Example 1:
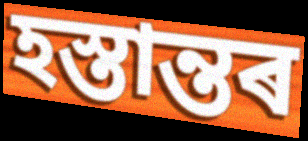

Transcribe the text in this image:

হস্তান্তৰ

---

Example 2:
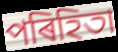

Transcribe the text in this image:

পৰিহিতা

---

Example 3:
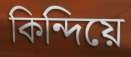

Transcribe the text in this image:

কিন্দিয়ে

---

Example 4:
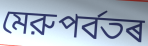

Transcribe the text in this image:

মেৰুপৰ্বতৰ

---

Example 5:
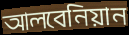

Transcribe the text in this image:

আলবেনিয়ান